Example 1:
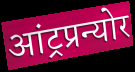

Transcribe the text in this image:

आंट्रप्रन्योर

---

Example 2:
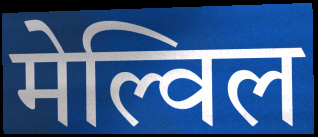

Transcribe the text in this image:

मेल्विल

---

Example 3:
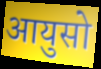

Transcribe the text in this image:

आयुसो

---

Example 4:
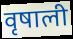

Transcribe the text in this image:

वृषाली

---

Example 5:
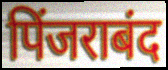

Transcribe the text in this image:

पिंजराबंद